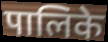
पालिके